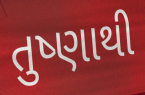
તુષ્ણાથી